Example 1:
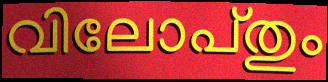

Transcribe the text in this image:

വിലോപ്തും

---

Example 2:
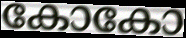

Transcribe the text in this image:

കോകോ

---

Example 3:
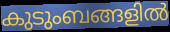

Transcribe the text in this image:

കുടുംബങ്ങളിൽ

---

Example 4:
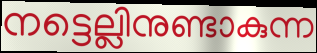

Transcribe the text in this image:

നട്ടെല്ലിനുണ്ടാകുന്ന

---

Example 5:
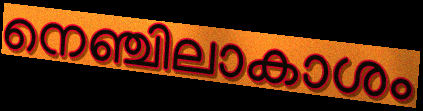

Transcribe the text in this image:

നെഞ്ചിലാകാശം